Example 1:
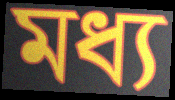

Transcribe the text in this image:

মধ্য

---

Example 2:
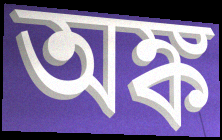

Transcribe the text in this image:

অঙ্ক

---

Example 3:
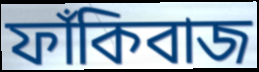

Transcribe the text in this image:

ফাঁকিবাজ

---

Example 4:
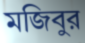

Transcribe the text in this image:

মজিবুর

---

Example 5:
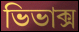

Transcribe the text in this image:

ভিভাক্স